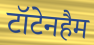
टॉटेनहैम